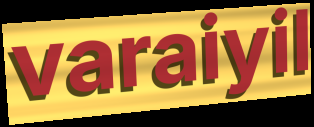
varaiyil